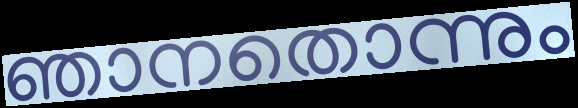
ഞാനതൊന്നും